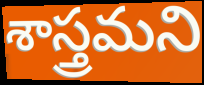
శాస్త్రమని